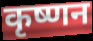
कृष्णन